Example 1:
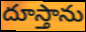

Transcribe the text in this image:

దూస్తాను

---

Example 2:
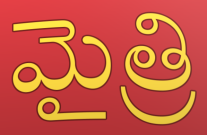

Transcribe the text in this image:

మైత్రి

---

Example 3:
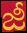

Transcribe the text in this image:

జీ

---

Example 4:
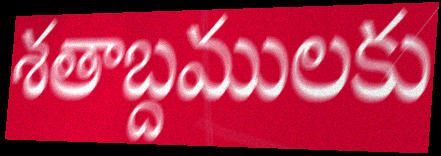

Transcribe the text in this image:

శతాబ్దములకు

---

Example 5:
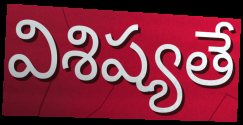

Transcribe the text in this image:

విశిష్యతే